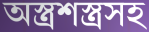
অস্ত্রশস্ত্রসহ